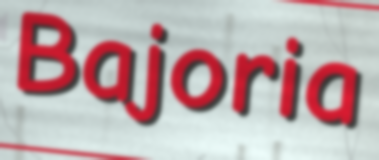
Bajoria